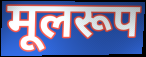
मूलरूप